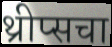
थ्रीप्सचा